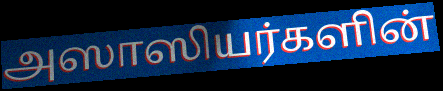
அஸாஸியர்களின்